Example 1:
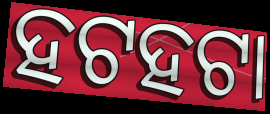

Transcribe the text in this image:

ହଟହଟା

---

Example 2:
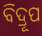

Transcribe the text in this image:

ବିଦ୍ରୂପ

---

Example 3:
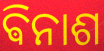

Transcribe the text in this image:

ଵିନାଶ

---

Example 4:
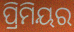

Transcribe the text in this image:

ପ୍ରିମିୟର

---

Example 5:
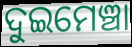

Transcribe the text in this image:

ଦୁଇମେଞ୍ଚା